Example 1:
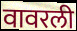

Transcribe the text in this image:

वावरली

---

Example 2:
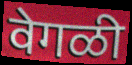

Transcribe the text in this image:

वेगळी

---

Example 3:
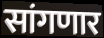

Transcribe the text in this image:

सांगणार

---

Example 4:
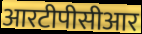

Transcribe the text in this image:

आरटीपीसीआर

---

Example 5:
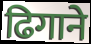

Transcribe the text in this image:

ढिगाने